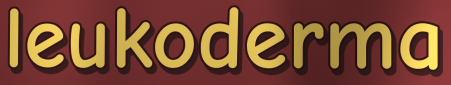
leukoderma